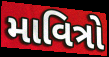
માવિત્રો